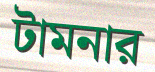
টামনার